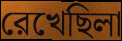
রেখেছিলা